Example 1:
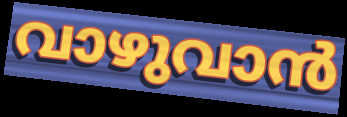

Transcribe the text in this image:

വാഴുവാൻ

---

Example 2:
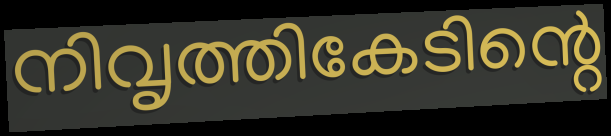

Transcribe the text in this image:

നിവൃത്തികേടിന്റെ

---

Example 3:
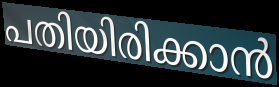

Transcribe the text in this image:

പതിയിരിക്കാൻ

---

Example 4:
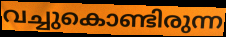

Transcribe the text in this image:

വച്ചുകൊണ്ടിരുന്ന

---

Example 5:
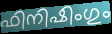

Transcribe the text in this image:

ഫിനിഷിംഗും